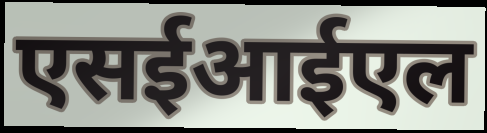
एसईआईएल